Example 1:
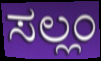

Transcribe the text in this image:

ಸಲ್ಲಂ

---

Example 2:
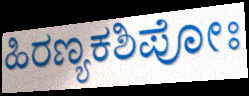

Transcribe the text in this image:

ಹಿರಣ್ಯಕಶಿಪೋಃ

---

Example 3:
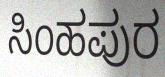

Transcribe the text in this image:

ಸಿಂಹಪುರ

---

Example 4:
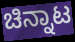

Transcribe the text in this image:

ಚಿನ್ನಾಟ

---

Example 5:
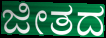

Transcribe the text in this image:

ಜೀತದ